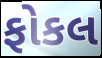
ફોકલ